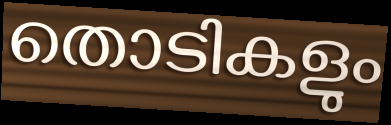
തൊടികളും